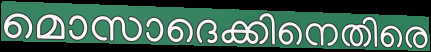
മൊസാദെക്കിനെതിരെ